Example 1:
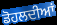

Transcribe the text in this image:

ਡੋਹਲਦੀਆਂ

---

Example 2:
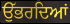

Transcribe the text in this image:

ਉੱਭਰਦਿਆਂ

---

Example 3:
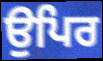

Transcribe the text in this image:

ਉਪਿਰ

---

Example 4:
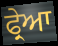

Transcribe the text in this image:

ਫ੍ਰੇਆ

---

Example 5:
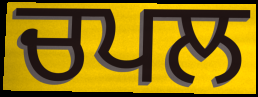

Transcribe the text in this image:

ਚਪਲ